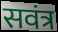
सवंत्र